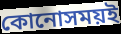
কোনোসময়ই